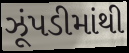
ઝૂંપડીમાંથી